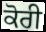
ਕੋਰੀ